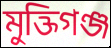
মুক্তিগঞ্জ